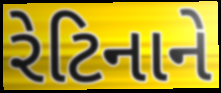
રેટિનાને